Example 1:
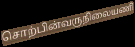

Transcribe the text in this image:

சொற்பின்வருநிலையணி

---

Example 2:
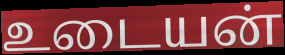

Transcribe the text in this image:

உடையன்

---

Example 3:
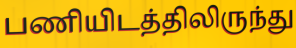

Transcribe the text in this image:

பணியிடத்திலிருந்து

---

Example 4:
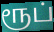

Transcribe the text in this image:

ரூப்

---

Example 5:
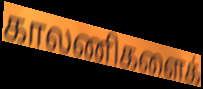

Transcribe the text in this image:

காலணிகளைக்